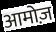
आमोज़